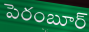
పెరంబూర్